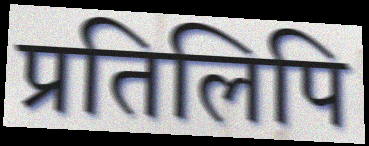
प्रतिलिपि